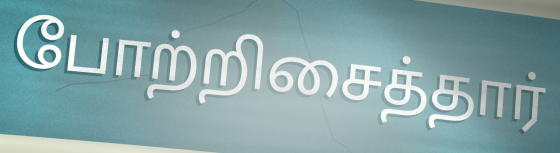
போற்றிசைத்தார்